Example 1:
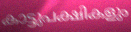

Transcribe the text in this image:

കാട്ടുപക്ഷികളും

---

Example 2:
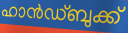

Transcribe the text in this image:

ഹാൻഡ്ബുക്ക്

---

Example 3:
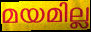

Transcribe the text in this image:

മയമില്ല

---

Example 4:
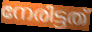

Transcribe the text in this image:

നേരിട്ടത്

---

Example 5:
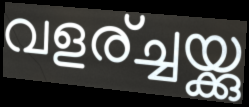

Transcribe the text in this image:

വളര്ച്ചയ്ക്കു